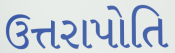
ઉત્તરાપોતિ